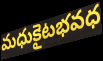
మధుకైటభవధ